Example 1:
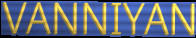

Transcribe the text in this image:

VANNIYAN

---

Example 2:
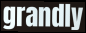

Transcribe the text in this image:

grandly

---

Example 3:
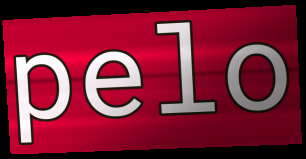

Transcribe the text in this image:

pelo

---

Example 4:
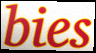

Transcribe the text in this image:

bies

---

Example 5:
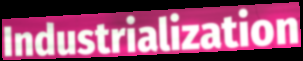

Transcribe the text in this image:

Industrialization